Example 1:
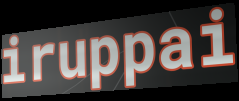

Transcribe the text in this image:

iruppai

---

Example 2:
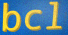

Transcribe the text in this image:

bcl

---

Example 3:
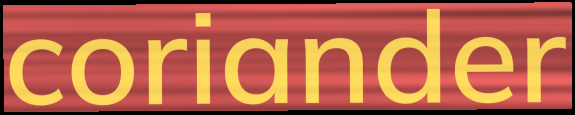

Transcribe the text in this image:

coriander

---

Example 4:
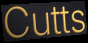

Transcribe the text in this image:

Cutts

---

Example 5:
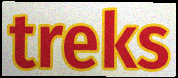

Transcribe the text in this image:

treks